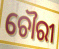
ଚୌରୀ